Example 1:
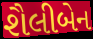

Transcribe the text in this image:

શૈલીબેન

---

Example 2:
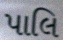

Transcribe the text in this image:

પાલિ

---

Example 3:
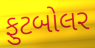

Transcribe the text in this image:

ફુટબોલર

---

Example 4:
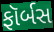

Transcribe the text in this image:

ફૉર્બસ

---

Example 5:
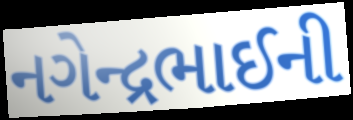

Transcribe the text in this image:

નગેન્દ્રભાઈની